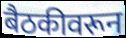
बैठकीवरून